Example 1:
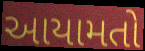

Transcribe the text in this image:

આયામતો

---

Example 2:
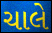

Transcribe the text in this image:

ચાલે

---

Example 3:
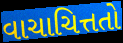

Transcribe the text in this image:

વાચાચિત્તતો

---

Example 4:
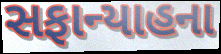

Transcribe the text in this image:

સફાન્યાહના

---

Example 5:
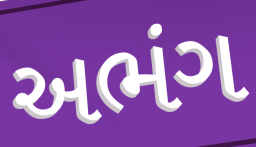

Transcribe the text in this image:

અભંગ